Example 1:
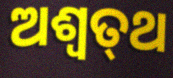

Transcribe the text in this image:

ଅଶ୍ଵତ୍‍ଥ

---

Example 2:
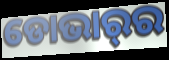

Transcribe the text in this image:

ଡୋଭାର୍‌ର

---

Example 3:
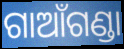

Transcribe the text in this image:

ଗାଆଁଗଣ୍ଡା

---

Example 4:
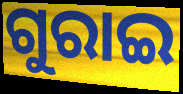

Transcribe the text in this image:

ଗୁରାଇ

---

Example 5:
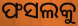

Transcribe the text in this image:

ଫସଲକୁ